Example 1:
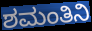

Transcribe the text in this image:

ಶಮಂತಿನಿ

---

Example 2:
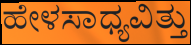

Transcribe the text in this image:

ಹೇಳಸಾಧ್ಯವಿತ್ತು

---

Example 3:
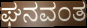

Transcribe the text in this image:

ಘನವಂತ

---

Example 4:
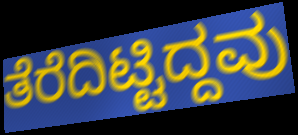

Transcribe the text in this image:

ತೆರೆದಿಟ್ಟಿದ್ದವು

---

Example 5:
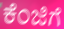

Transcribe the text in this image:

ಕೆಂಜಿಗೆ